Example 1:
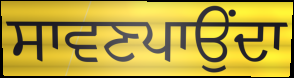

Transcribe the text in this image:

ਸਾਵਣਪਾਉਂਦਾ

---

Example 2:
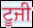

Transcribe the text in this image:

ਟੂਜੀ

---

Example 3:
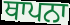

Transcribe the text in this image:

ਥਾਪਨਾ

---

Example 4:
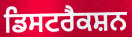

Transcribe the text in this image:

ਡਿਸਟਰੈਕਸ਼ਨ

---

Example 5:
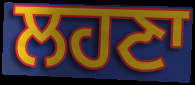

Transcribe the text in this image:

ਲਹਣਾ